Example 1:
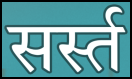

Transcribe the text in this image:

सर्स्त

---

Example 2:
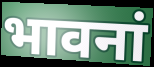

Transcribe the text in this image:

भावनां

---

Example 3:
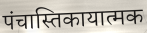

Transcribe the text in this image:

पंचास्तिकायात्मक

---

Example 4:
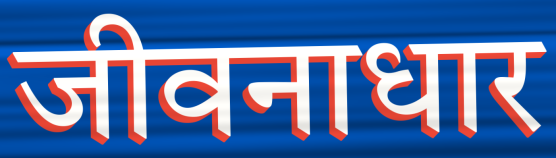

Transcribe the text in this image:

जीवनाधार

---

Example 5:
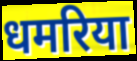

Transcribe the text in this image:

धमरिया